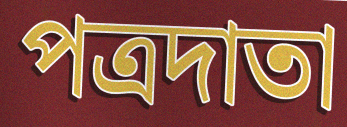
পত্রদাতা